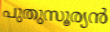
പുതുസൂര്യൻ